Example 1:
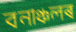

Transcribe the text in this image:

বনাঞ্চলৰ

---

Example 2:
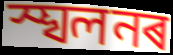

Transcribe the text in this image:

স্খলনৰ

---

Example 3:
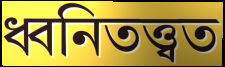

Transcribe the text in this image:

ধ্বনিতত্ত্বত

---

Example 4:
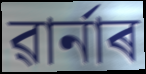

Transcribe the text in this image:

ৱাৰ্নাৰ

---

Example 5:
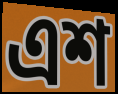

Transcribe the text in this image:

এশ